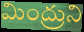
మింద్రుని